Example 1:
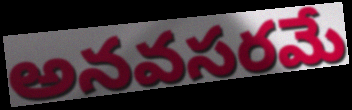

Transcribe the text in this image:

అనవసరమే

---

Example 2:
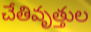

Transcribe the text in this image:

చేతివృత్తుల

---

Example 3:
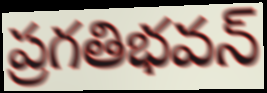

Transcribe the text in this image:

ప్రగతిభవన్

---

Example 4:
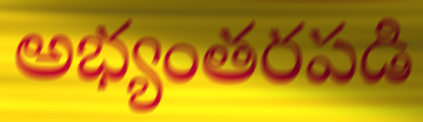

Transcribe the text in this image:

అభ్యంతరపడి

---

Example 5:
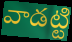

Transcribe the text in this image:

వాడట్టి